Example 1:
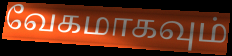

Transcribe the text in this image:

வேகமாகவும்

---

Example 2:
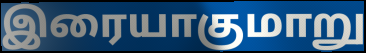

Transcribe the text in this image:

இரையாகுமாறு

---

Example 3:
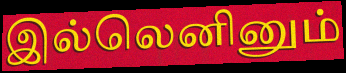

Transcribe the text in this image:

இல்லெனினும்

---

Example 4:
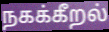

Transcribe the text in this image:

நகக்கீறல்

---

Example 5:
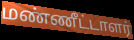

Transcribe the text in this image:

மண்ணீட்டாளர்